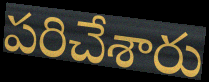
పరిచేశారు